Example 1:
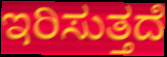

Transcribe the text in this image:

ಇರಿಸುತ್ತದೆ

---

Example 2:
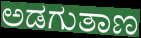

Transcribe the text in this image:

ಅಡಗುತಾಣ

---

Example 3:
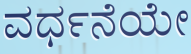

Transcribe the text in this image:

ವರ್ಧನೆಯೇ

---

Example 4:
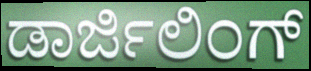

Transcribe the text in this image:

ಡಾರ್ಜಿಲಿಂಗ್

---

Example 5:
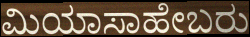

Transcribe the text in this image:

ಮಿಯಾಸಾಹೇಬರು